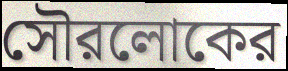
সৌরলোকের